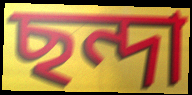
ছন্দা